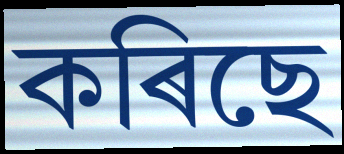
কৰিছে